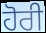
ਹੋਰੀ